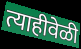
त्याहीवेळी